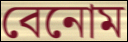
বেনোম